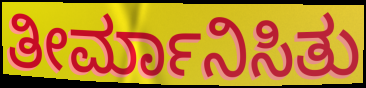
ತೀರ್ಮಾನಿಸಿತು